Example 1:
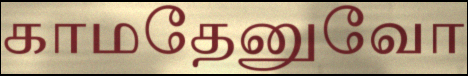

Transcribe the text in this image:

காமதேனுவோ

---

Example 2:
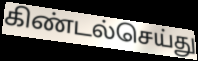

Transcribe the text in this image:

கிண்டல்செய்து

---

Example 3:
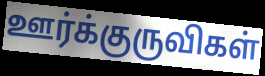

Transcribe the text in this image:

ஊர்க்குருவிகள்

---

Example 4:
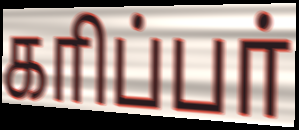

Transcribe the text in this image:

கரிப்பர்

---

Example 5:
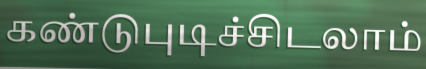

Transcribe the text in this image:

கண்டுபுடிச்சிடலாம்